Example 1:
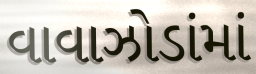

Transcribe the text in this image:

વાવાઝોડાંમાં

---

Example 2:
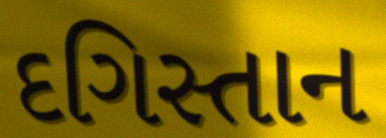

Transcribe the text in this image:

દગિસ્તાન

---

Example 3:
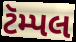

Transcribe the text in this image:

ટૅમ્પલ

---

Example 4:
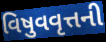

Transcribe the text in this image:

વિષુવવૃત્તની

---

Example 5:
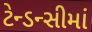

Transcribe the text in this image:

ટેન્ડન્સીમાં